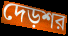
দেড়শর